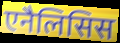
एनैलिसिस